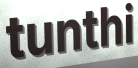
tunthi